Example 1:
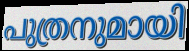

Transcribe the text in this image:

പുത്രനുമായി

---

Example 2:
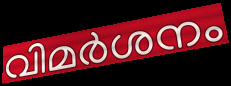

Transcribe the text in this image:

വിമർശനം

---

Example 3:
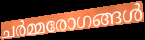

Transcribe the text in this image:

ചർമ്മരോഗങ്ങൾ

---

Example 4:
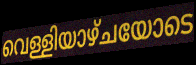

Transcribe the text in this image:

വെള്ളിയാഴ്ചയോടെ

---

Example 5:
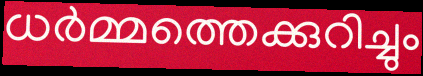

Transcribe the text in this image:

ധർമ്മത്തെക്കുറിച്ചും